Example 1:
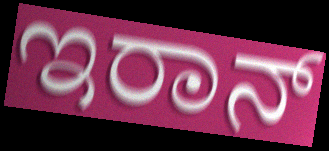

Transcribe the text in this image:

ಇರಾನ್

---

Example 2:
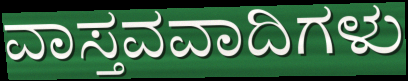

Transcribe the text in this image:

ವಾಸ್ತವವಾದಿಗಳು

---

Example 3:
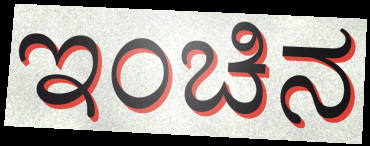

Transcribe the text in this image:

ಇಂಚಿನ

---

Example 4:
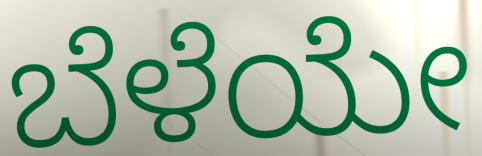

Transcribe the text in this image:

ಬೆಳೆಯೇ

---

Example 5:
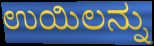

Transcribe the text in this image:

ಉಯಿಲನ್ನು